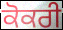
ਕੋਕਰੀ